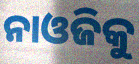
ନାଓଜିକୁ